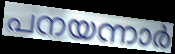
പനയന്നാർ